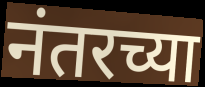
नंतरच्या